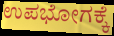
ಉಪಭೋಗಕ್ಕೆ